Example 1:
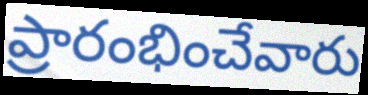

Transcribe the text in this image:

ప్రారంభించేవారు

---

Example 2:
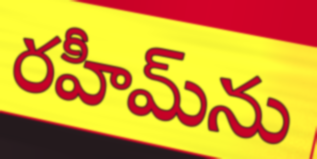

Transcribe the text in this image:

రహీమ్‌ను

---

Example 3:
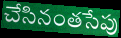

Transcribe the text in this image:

చేసినంతసేపు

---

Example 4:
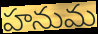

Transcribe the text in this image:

హనుమ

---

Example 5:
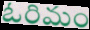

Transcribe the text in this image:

ఓరిమం